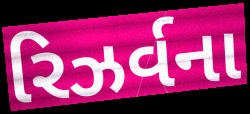
રિઝર્વના